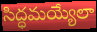
సిద్ధమయ్యేలా